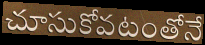
చూసుకోవటంతోనే